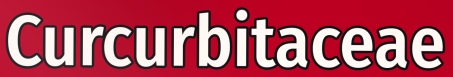
Curcurbitaceae